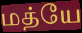
மத்யே